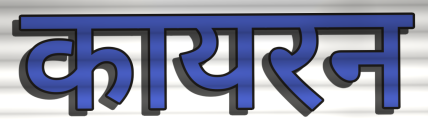
कायरन